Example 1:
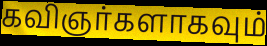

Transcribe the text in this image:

கவிஞர்களாகவும்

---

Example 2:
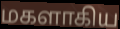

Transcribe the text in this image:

மகளாகிய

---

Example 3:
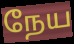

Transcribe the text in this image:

நேய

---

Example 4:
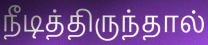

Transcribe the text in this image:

நீடித்திருந்தால்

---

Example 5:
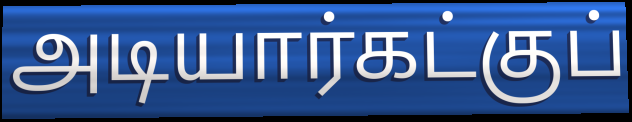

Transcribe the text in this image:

அடியார்கட்குப்